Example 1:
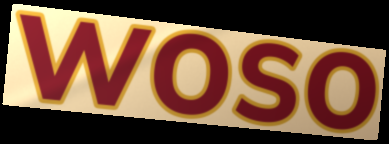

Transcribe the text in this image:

woso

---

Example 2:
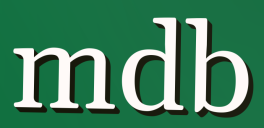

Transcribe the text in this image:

mdb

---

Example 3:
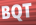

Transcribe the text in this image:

BQT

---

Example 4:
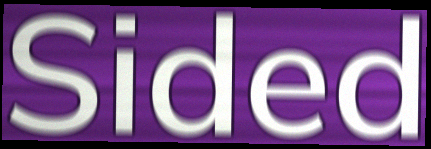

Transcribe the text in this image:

Sided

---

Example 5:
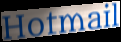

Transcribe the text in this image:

Hotmail